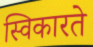
स्विकारते